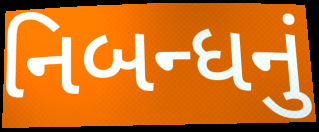
નિબન્ધનું